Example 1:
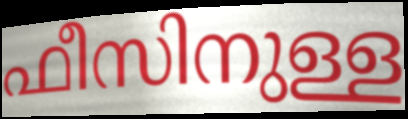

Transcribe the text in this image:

ഫീസിനുള്ള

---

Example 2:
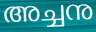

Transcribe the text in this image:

അച്ചനു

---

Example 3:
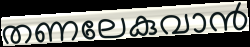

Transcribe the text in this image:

തണലേകുവാൻ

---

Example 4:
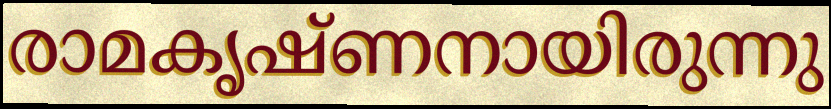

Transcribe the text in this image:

രാമകൃഷ്ണനായിരുന്നു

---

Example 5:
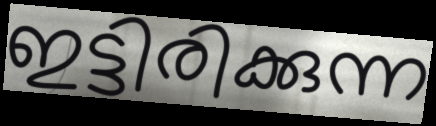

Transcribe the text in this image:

ഇട്ടിരിക്കുന്ന